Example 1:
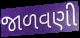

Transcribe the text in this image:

જાળવણી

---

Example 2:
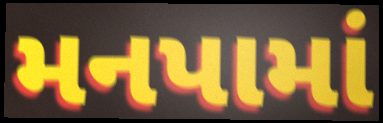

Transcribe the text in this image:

મનપામાં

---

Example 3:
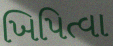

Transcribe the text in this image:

ખિપિત્વા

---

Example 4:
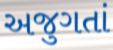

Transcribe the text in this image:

અજુગતાં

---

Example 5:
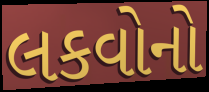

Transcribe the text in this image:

લકવોનો